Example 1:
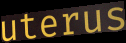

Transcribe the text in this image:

uterus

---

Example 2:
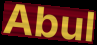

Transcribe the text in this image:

Abul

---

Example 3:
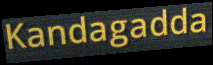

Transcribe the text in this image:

Kandagadda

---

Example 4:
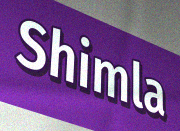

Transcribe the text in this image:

Shimla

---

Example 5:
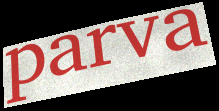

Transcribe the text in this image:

parva